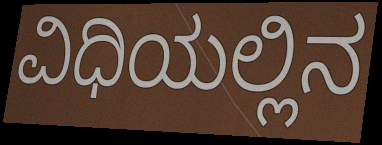
ವಿಧಿಯಲ್ಲಿನ